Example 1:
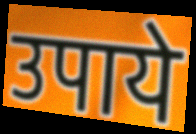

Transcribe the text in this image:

उपाये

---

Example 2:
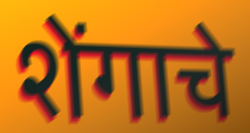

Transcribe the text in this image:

शेंगाचे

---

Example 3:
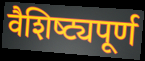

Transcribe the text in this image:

वैशिष्‍ट्यपूर्ण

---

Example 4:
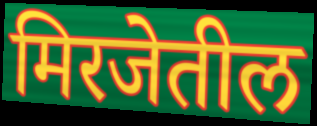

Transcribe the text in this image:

मिरजेतील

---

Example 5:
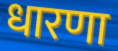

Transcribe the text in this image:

धारणा